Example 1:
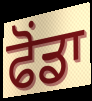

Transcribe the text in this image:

ਫੋਂਡਾ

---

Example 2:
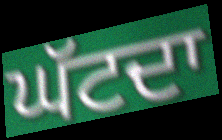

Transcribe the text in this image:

ਘੱਟਦਾ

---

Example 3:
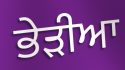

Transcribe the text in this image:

ਭੇੜੀਆ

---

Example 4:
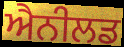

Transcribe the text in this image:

ਐਨੀਲਡ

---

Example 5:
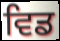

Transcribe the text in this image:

ਵਿਡ